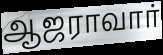
ஆஜராவார்